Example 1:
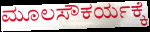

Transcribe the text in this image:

ಮೂಲಸೌಕರ್ಯಕ್ಕೆ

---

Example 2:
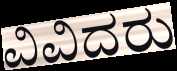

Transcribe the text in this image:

ವಿವಿದರು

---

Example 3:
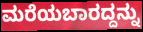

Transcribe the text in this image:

ಮರೆಯಬಾರದ್ದನ್ನು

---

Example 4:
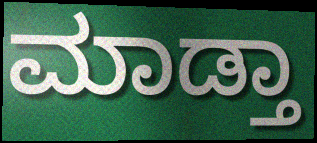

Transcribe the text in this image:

ಮಾಡ್ತಾ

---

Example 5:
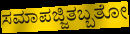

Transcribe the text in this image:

ಸಮಾಪಜ್ಜಿತಬ್ಬತೋ